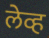
लेव्ह